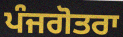
ਪੰਜਗੋਤਰਾ